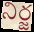
నిర్జ